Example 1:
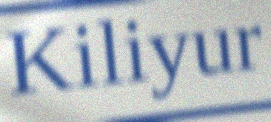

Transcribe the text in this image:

Kiliyur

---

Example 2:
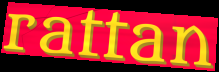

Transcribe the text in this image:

rattan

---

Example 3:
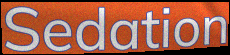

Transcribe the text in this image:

Sedation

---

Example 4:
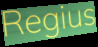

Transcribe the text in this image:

Regius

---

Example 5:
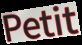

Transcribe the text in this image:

Petit